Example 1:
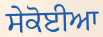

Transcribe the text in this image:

ਸੇਕੋਈਆ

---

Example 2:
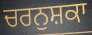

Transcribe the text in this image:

ਚਰਨੁਸ਼ਕਾ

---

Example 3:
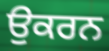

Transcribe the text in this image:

ਉਕਰਨ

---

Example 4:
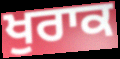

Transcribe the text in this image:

ਖੁਰਾਕ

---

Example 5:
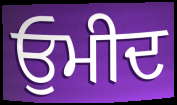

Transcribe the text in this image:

ਓੁਮੀਦ